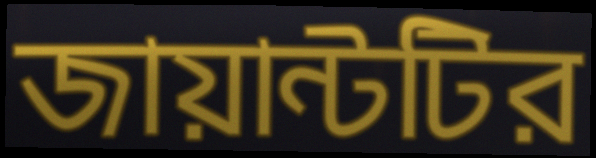
জায়ান্টটির